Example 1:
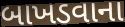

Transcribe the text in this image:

બાખડવાના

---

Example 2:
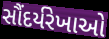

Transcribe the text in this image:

સૌંદર્યરેખાઓ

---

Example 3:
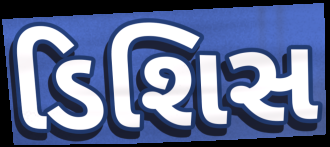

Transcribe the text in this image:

ડિશિસ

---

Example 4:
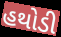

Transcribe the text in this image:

હથોડી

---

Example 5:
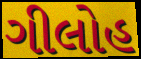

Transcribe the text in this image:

ગીલોહ